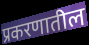
प्रकरणातील